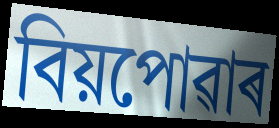
বিয়পোৱাৰ